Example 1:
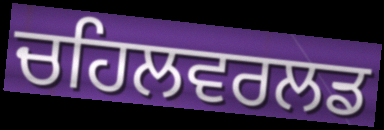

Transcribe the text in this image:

ਚਹਿਲਵਰਲਡ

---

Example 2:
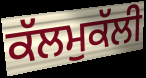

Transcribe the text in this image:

ਕੱਲਮੁਕੱਲੀ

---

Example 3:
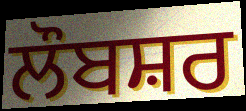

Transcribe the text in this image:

ਲੌਬਸ਼ਰ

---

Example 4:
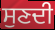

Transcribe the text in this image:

ਸੁਣਦੀ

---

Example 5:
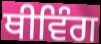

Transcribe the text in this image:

ਥੀਵਿੰਗ